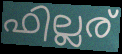
ഫില്ലര്